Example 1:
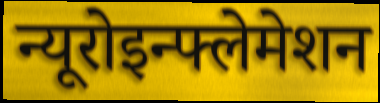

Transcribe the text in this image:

न्यूरोइन्फ्लेमेशन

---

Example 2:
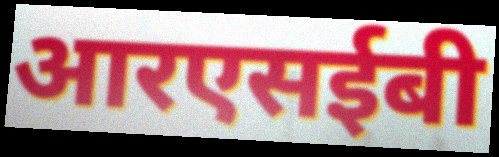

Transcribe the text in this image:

आरएसईबी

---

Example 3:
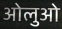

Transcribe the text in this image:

ओलुओ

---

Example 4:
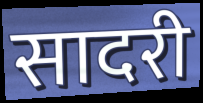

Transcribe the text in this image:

सादरी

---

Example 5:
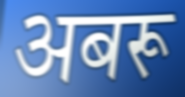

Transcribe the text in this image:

अबरू